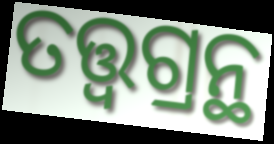
ତତ୍ତ୍ୱଗ୍ରନ୍ଥ